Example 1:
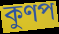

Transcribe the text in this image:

কুণপ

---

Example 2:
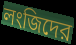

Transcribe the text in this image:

লংজিদের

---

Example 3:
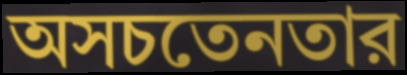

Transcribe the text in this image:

অসচতেনতার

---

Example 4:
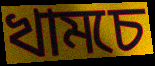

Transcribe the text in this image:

খামচে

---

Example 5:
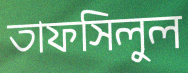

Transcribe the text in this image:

তাফসিলুল